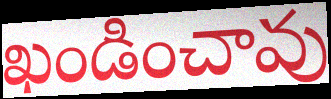
ఖండించావు